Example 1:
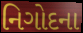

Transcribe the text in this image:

નિગોદના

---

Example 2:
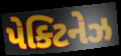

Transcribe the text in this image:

પેક્ટિનેઝ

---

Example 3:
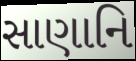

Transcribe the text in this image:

સાણાનિ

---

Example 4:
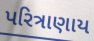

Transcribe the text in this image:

પરિત્રાણાય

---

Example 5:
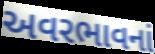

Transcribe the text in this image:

અવરભાવનાં